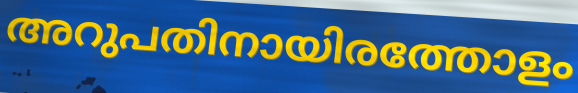
അറുപതിനായിരത്തോളം